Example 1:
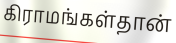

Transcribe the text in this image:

கிராமங்கள்தான்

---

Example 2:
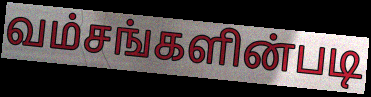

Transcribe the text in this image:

வம்சங்களின்படி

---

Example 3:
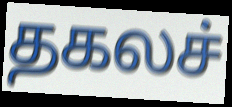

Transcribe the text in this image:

தகலச்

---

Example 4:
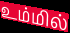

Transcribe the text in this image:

உம்மில்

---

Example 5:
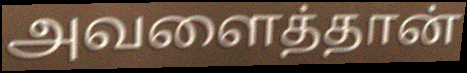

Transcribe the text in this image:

அவளைத்தான்